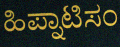
ಹಿಪ್ನಾಟಿಸಂ